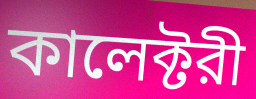
কালেক্টরী